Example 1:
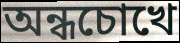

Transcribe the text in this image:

অন্ধচোখে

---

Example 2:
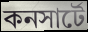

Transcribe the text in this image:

কনসার্টে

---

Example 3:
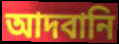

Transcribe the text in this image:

আদবানি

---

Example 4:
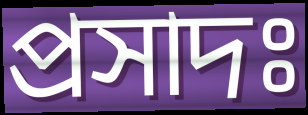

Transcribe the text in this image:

প্রসাদঃ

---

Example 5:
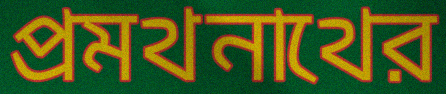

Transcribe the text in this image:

প্রমথনাথের